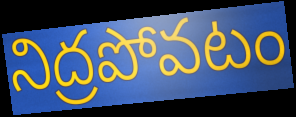
నిద్రపోవటం